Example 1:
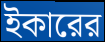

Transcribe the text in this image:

ইকারের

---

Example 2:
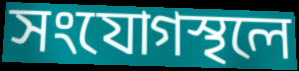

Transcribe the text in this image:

সংযোগস্থলে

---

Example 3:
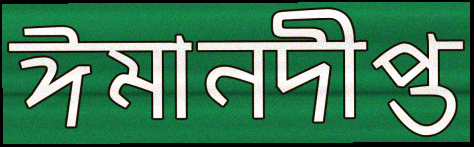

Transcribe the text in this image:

ঈমানদীপ্ত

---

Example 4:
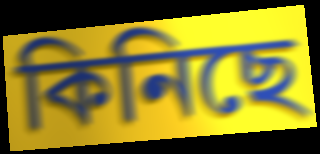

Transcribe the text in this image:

কিনিছে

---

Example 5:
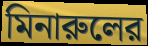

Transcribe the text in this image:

মিনারুলের